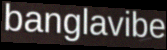
banglavibe